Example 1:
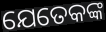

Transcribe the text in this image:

ଯେତେକଙ୍କ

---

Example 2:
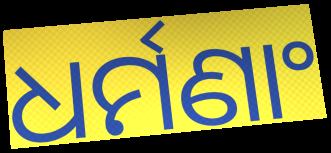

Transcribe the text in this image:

ଧର୍ମଣାଂ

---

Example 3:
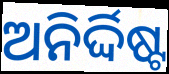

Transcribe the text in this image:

ଅନିର୍ଦ୍ଦିଷ୍ଟ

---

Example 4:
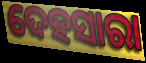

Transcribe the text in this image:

ଦେହସାରା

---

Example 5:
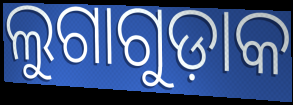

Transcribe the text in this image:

ଲୁଗାଗୁଡ଼ାକ